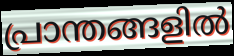
പ്രാന്തങ്ങളിൽ